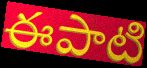
ఈపాటి